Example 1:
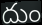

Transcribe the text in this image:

దుం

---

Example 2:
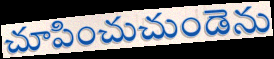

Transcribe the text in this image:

చూపించుచుండెను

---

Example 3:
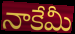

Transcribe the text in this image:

నాకేమీ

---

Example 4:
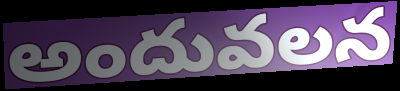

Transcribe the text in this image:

అందువలన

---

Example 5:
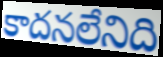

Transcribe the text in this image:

కాదనలేనిది